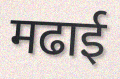
मढाई